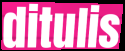
ditulis